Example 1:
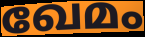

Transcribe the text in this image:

ഖേമം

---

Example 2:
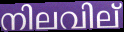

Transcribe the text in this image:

നിലവില്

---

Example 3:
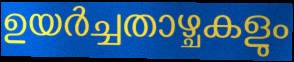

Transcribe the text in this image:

ഉയർച്ചതാഴ്ചകളും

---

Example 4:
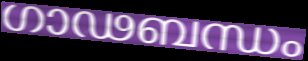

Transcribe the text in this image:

ഗാഢബന്ധം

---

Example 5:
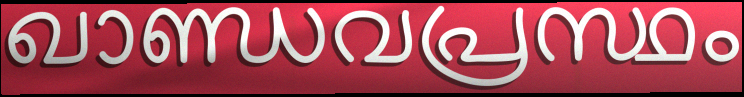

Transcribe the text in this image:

ഖാണ്ഡവപ്രസ്ഥം